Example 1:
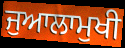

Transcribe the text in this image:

ਜੁਆਲਾਮੁਖੀ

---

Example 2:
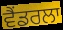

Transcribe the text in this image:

ਵੈਂਡਰਲਾ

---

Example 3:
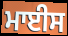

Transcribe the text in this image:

ਮਾਈਸ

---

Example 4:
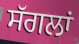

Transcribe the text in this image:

ਸੱਗਲਾਂ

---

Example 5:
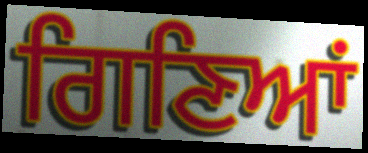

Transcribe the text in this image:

ਗਿਣਿਆਂ